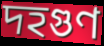
দহগুণ